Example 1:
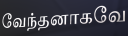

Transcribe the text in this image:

வேந்தனாகவே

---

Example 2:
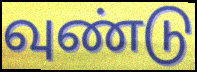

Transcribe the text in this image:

வுண்டு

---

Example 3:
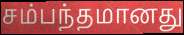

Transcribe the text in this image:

சம்பந்தமானது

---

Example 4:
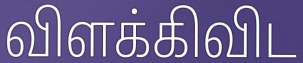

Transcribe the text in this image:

விளக்கிவிட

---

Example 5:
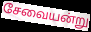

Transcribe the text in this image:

சேவையன்று